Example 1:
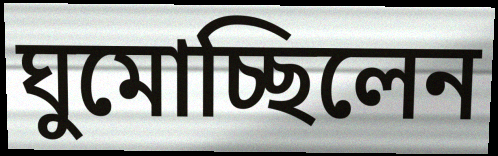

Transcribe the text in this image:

ঘুমোচ্ছিলেন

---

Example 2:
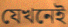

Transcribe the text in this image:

যেখনেই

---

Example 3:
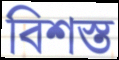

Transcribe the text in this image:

বিশস্ত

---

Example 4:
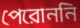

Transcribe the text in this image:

পেরোননি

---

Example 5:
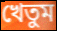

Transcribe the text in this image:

খেতুম